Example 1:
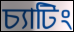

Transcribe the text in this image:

চ্যাটিং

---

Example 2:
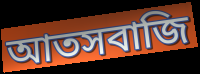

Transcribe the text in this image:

আতসবাজি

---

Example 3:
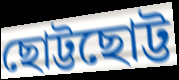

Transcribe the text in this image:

ছোট্টছোট্ট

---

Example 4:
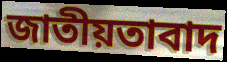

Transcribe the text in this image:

জাতীয়তাবাদ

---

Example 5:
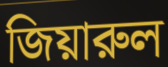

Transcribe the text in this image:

জিয়ারুল